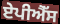
ਏਪੀਐੱਸ